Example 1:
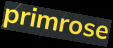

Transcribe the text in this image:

primrose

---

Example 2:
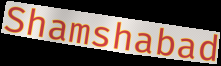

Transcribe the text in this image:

Shamshabad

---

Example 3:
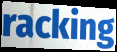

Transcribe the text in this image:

racking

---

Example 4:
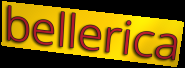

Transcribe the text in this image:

bellerica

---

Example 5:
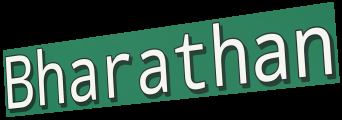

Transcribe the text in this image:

Bharathan